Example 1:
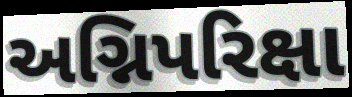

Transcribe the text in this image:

અગ્નિપરિક્ષા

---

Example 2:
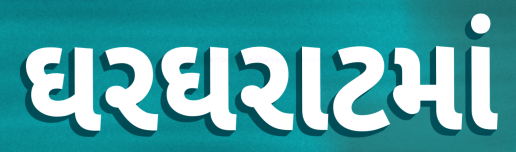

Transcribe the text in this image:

ઘરઘરાટમાં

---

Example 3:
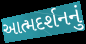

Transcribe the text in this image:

આત્મદર્શનનું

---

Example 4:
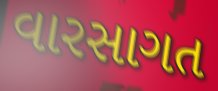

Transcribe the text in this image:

વારસાગત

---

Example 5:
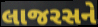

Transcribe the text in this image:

લાજરસને